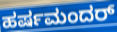
ಹರ್ಷಮಂದರ್